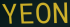
YEON